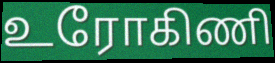
உரோகிணி